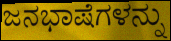
ಜನಭಾಷೆಗಳನ್ನು